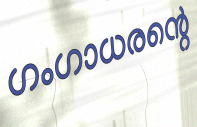
ഗംഗാധരന്റെ